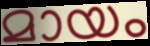
മായം